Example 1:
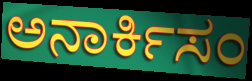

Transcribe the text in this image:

ಅನಾರ್ಕಿಸಂ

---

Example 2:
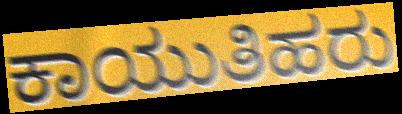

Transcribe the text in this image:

ಕಾಯುತಿಹರು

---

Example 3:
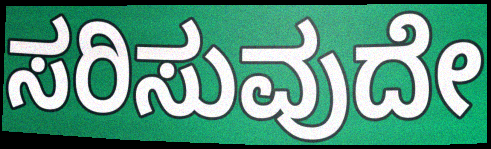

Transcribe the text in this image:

ಸರಿಸುವುದೇ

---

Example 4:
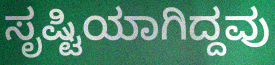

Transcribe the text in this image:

ಸೃಷ್ಟಿಯಾಗಿದ್ದವು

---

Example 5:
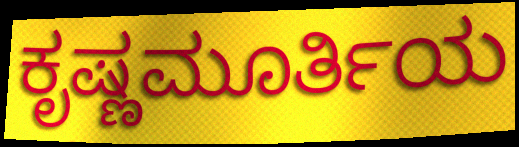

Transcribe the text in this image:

ಕೃಷ್ಣಮೂರ್ತಿಯ